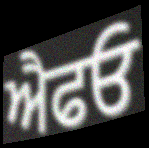
ਐਫਓ